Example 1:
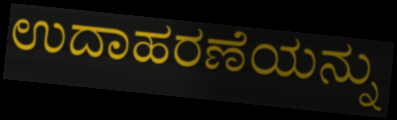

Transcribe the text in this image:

ಉದಾಹರಣೆಯನ್ನು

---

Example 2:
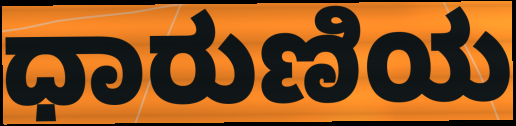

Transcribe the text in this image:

ಧಾರುಣಿಯ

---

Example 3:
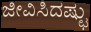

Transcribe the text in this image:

ಜೀವಿಸಿದಷ್ಟು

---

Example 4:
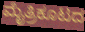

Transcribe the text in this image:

ಮೈತ್ರಿಕೂಟದ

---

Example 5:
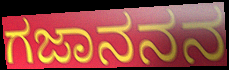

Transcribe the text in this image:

ಗಜಾನನನ